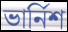
ভার্নিশ